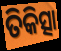
ତିକିତ୍ସା